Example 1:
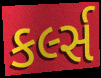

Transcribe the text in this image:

કર્લ્સ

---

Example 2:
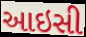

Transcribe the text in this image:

આઇસી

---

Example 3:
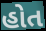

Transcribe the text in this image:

હોત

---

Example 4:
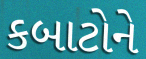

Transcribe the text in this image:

કબાટોને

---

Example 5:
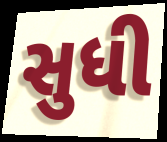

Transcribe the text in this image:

સુધી